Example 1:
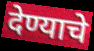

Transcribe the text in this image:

देण्याचे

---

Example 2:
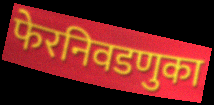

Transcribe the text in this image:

फेरनिवडणुका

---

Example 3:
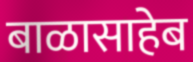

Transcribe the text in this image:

बाळासाहेब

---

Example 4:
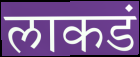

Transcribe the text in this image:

लाकडं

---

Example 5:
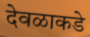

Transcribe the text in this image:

देवळाकडे